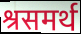
श्रसमर्थ